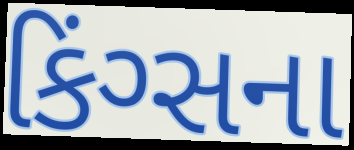
કિંગ્સના